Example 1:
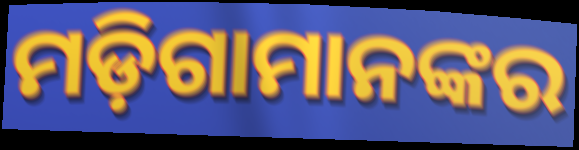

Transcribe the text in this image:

ମଡ଼ିଗାମାନଙ୍କର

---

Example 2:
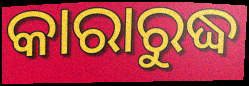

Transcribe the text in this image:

କାରାରୁଦ୍ଧ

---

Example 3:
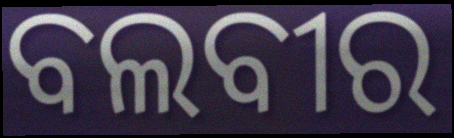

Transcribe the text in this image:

ବଲବୀର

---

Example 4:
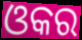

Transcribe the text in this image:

ଓକର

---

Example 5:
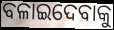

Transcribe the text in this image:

ବଳାଇଦେବାକୁ